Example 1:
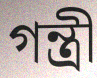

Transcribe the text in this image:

গন্ত্রী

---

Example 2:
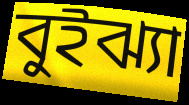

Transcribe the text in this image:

বুইঝ্যা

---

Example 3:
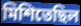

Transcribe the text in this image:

মিশিতেছিল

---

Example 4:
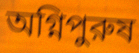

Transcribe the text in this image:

অগ্নিপুরুষ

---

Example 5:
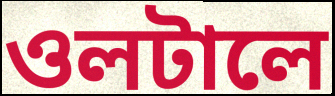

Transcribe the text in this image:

ওলটালে